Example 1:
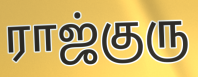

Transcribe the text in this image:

ராஜ்குரு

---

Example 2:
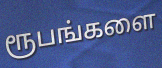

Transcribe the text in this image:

ரூபங்களை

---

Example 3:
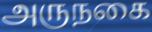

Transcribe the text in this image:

அருநகை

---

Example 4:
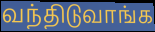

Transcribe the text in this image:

வந்திடுவாங்க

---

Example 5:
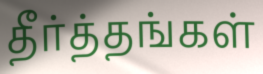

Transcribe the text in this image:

தீர்த்தங்கள்